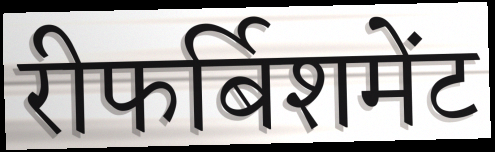
रीफर्बिशमेंट